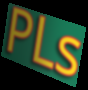
PLs